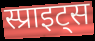
स्प्राइट्स